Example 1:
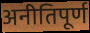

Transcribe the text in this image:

अनीतिपूर्ण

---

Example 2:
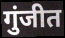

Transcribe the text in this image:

गुंजीत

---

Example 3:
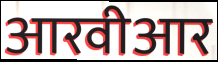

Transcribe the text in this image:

आरवीआर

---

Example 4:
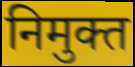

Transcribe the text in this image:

निमुक्त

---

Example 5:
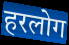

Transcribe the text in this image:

हरलोग